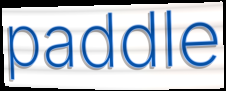
paddle